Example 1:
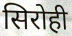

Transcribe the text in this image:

सिरोही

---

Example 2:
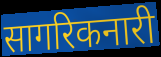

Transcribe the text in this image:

सागरिकनारी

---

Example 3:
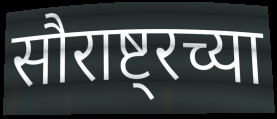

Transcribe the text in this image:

सौराष्ट्रच्या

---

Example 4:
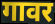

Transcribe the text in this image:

गावर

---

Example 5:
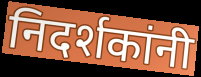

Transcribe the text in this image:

निदर्शकांनी